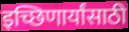
इच्छिणार्यांसाठी